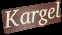
Kargel